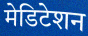
मेडिटेशन